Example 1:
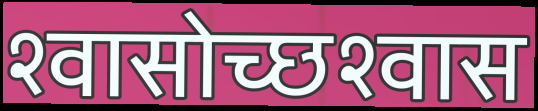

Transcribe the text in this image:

श्वासोच्छश्वास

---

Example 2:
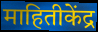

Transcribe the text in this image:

माहितीकेंद्र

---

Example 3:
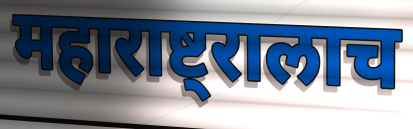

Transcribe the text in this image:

महाराष्ट्रालाच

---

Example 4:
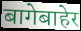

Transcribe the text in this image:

बागेबाहेर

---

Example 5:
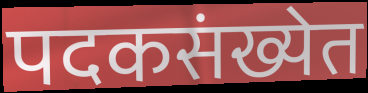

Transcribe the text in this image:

पदकसंख्येत